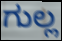
ಗುಲ್ಲ